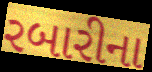
રબારીના